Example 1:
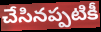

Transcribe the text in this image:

చేసినప్పటికీ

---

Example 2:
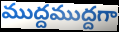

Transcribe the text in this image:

ముద్దముద్దగా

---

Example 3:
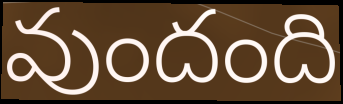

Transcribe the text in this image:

వుందంది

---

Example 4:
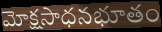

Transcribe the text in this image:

మోక్షసాధనభూతం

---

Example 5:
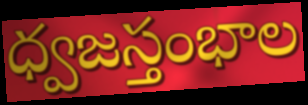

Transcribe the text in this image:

ధ్వజస్తంభాల